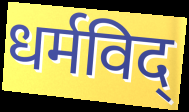
धर्मविद्